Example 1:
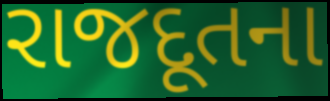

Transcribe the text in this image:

રાજદૂતના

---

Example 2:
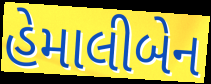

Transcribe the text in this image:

હેમાલીબેન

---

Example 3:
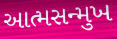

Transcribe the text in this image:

આત્મસન્મુખ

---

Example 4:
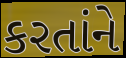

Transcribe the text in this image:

કરતાંને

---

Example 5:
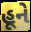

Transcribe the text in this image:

હૂને